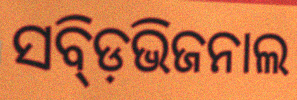
ସବ୍ଡ଼ିଭିଜନାଲ